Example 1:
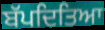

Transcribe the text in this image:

ਬੱਪਦਿਤਿਆ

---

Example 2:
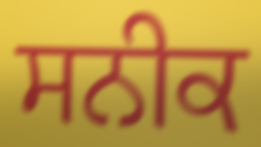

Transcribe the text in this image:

ਸਨੀਕ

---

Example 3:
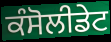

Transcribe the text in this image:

ਕੰਸੋਲੀਡੇਟ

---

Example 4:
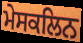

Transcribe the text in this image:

ਮੇਸਕਲਿਨ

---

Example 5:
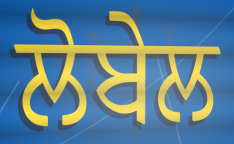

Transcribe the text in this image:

ਲੋਬੇਲ